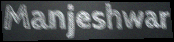
Manjeshwar